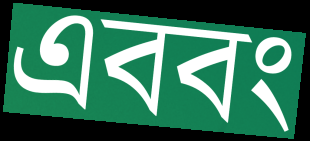
এববং